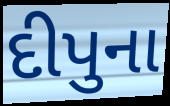
દીપુના